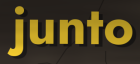
junto